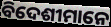
ବିଦେଶୀମାନେ